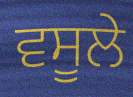
ਵਸੂਲੇ